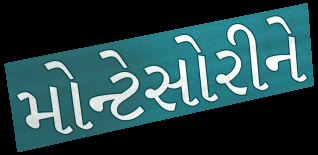
મોન્ટેસોરીને